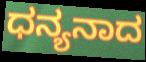
ಧನ್ಯನಾದ